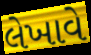
લેખાવે